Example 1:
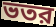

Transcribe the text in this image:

ভতর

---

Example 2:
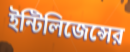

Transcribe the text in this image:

ইন্টিলিজেন্সের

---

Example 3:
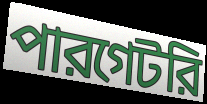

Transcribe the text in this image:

পারগেটরি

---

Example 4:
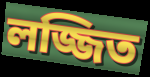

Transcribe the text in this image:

লজ্জিত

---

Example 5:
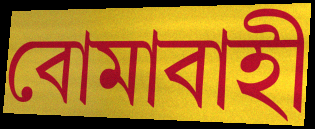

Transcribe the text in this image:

বোমাবাহী